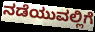
ನಡೆಯುವಲ್ಲಿಗೆ